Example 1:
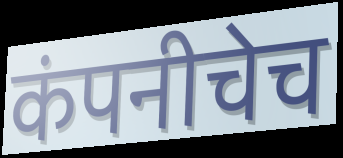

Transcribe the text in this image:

कंपनीचेच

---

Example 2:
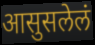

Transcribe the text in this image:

आसुसलेलं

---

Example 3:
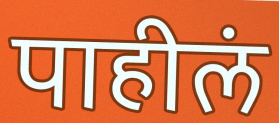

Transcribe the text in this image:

पाहीलं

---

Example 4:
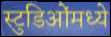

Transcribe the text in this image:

स्टुडिओंमध्ये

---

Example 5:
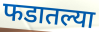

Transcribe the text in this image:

फडातल्या